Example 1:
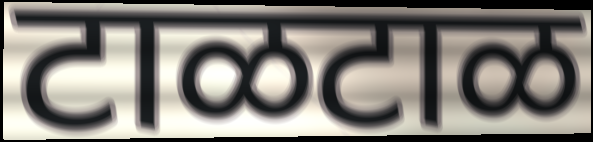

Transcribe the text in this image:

टाळटाळ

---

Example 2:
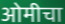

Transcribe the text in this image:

ओमीचा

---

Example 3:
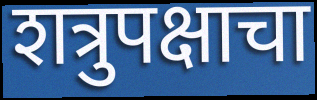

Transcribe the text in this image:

शत्रुपक्षाचा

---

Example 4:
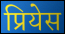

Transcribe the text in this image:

प्रियेस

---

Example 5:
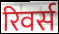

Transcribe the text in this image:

रिवर्स